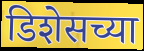
डिशेसच्या